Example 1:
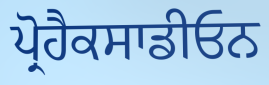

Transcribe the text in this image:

ਪ੍ਰੋਹੈਕਸਾਡੀਓਨ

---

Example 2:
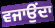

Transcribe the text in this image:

ਵਜਾਉਂਦਾ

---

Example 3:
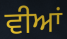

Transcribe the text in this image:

ਵੀਆਂ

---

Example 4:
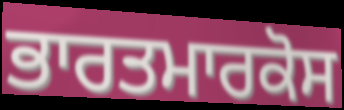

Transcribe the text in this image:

ਭਾਰਤਮਾਰਕੋਸ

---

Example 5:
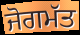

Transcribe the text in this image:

ਜੋਗਮੱਤ